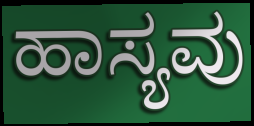
ಹಾಸ್ಯವು